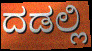
ದಡಲ್ಲಿ